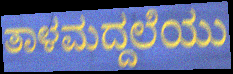
ತಾಳಮದ್ದಲೆಯು